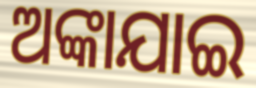
ଅଙ୍କାଯାଇ